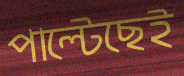
পাল্টেছেই